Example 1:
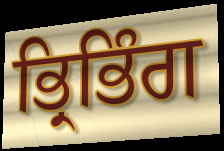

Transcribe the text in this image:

ਭ੍ਰਿਭਿੰਗ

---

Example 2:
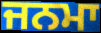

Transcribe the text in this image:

ਜਨਮਾ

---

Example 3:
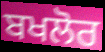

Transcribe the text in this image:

ਬਖਲੋਰ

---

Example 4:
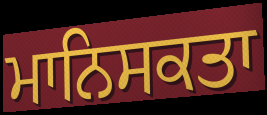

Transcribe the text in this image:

ਮਾਨਿਸਕਤਾ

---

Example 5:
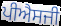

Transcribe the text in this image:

ਪੀਐਸਜੀ